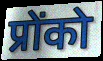
प्रोंको